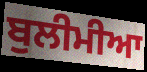
ਬੁਲੀਮੀਆ